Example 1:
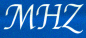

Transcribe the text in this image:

MHZ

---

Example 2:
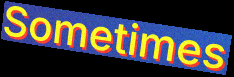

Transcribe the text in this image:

Sometimes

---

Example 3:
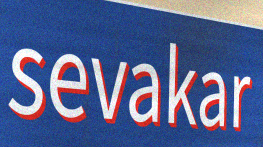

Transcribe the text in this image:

sevakar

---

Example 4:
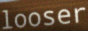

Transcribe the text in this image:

looser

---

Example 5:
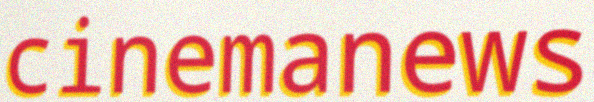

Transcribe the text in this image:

cinemanews